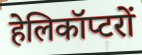
हेलिकॉप्टरों